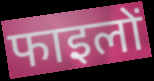
फाइलों